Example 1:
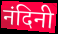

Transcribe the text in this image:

नंदिनी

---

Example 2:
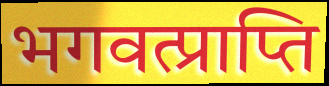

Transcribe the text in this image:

भगवत्प्राप्ति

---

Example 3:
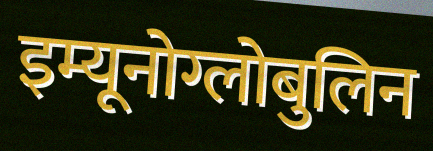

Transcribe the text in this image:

इम्यूनोग्लोबुलिन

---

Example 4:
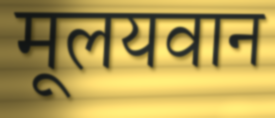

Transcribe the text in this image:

मूलयवान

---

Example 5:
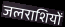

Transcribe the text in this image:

जलराशियों